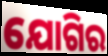
ଯୋଗିର